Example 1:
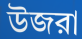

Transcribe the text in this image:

উজরা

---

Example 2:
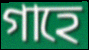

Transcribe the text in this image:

গাহে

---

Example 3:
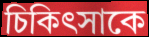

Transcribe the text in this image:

চিকিৎসাকে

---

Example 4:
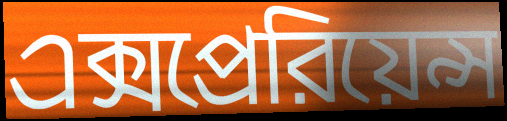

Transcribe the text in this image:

এক্সপ্রেরিয়েন্স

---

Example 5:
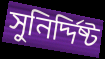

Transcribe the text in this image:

সুনির্দ্দিষ্ট